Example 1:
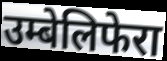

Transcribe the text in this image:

उम्बेलिफेरा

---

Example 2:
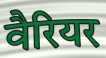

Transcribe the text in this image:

वैरियर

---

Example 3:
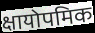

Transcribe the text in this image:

क्षायोपमिक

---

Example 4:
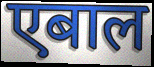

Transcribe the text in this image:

एबाल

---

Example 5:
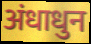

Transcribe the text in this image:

अंधाधुन